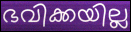
ഭവിക്കയില്ല